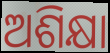
ଅଶିକ୍ଷା